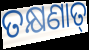
ତକ୍ଷଣାତ୍